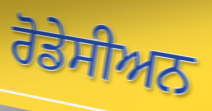
ਰੋਡੇਸੀਅਨ